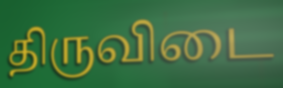
திருவிடை